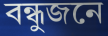
বন্ধুজনে